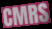
CMRS